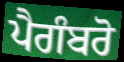
ਪੈਗੰਬਰੋ